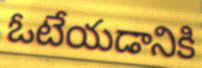
ఓటేయడానికి